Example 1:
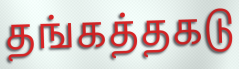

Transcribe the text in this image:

தங்கத்தகடு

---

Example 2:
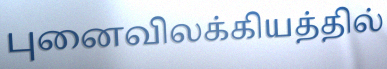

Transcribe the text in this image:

புனைவிலக்கியத்தில்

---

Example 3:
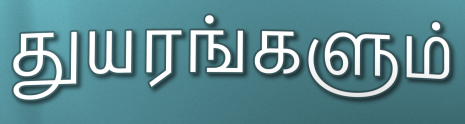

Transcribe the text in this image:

துயரங்களும்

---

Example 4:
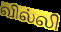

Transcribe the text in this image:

வில்லி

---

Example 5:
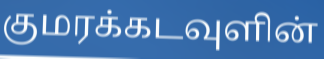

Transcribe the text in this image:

குமரக்கடவுளின்